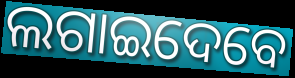
ଲଗାଇଦେବେ